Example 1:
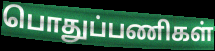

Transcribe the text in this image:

பொதுப்பணிகள்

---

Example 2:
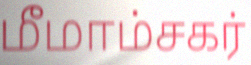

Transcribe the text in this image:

மீமாம்சகர்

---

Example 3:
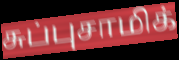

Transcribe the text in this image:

சுப்புசாமிக்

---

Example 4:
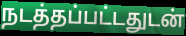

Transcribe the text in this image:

நடத்தப்பட்டதுடன்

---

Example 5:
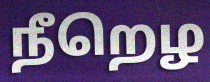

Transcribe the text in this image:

நீறெழ